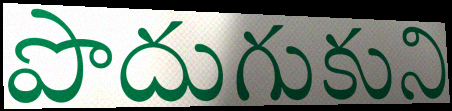
పొదుగుకుని